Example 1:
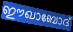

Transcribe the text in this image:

ഈഖാബോദ്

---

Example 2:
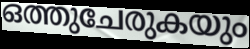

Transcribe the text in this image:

ഒത്തുചേരുകയും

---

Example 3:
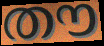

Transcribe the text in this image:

തൗ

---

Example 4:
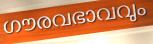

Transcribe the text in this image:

ഗൗരവഭാവവും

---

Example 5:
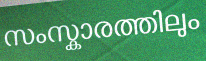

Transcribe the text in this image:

സംസ്കാരത്തിലും